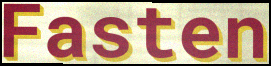
Fasten